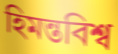
হিমন্তবিশ্ব